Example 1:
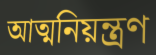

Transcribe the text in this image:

আত্মনিয়ন্ত্রণ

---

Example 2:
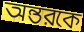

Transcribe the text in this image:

অন্তরকে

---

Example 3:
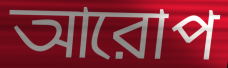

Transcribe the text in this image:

আরোপ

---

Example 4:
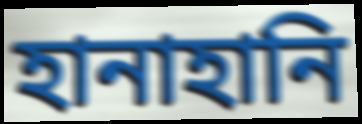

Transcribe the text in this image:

হানাহানি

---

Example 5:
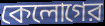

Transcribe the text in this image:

কেলোগের